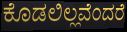
ಕೊಡಲಿಲ್ಲವೆಂದರೆ